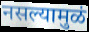
नसल्यामुळं